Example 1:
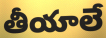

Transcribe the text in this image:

తీయాలే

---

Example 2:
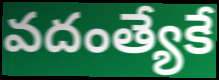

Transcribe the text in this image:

వదంత్యేకే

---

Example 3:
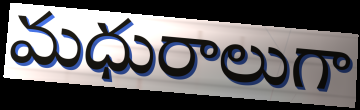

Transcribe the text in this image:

మధురాలుగా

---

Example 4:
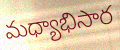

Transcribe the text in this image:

మధ్యాభిసార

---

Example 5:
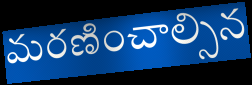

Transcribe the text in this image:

మరణించాల్సిన